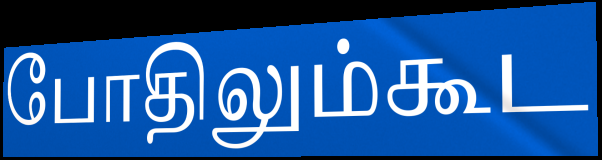
போதிலும்கூட